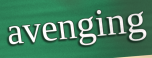
avenging